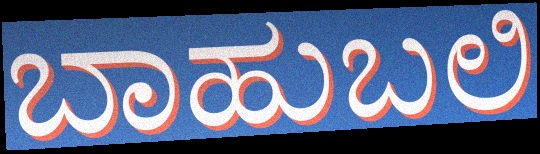
ಬಾಹುಬಲಿ